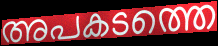
അപകടത്തെ